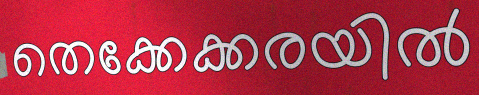
തെക്കേക്കരയിൽ